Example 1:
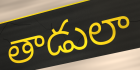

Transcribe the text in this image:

తాడులా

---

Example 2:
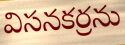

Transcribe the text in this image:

విసనకర్రను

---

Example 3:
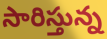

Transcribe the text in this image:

సారిస్తున్న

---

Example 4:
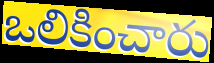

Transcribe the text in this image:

ఒలికించారు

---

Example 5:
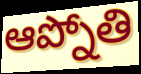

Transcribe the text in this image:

ఆప్నోతి